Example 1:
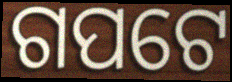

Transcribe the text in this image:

ଗପଟେ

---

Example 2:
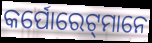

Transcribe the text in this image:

କର୍ପୋରେଟ୍‌ମାନେ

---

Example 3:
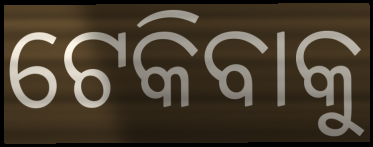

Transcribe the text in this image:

ଟେକିବାକୁ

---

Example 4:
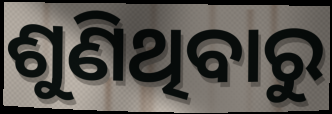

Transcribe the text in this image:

ଶୁଣିଥିବାରୁ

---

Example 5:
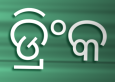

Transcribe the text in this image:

ଡ୍ରିଂକ